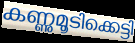
കണ്ണുമൂടിക്കെട്ടി